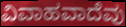
ವಿವಾಹವಾದೆವು